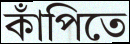
কাঁপিতে